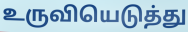
உருவியெடுத்து